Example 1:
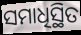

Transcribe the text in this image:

ସମାଧିସ୍ଥିତ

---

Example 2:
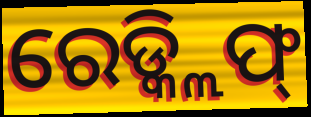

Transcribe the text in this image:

ରେଡ୍କ୍ଲିଫ୍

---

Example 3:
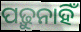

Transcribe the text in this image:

ପଢ଼ୁନାହିଁ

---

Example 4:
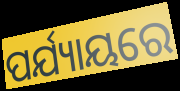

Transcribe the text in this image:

ପର୍ଯ୍ୟାୟରେ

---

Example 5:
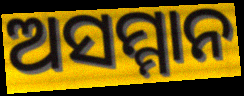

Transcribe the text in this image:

ଅସମ୍ମାନ